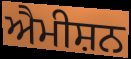
ਐਮੀਸ਼ਨ